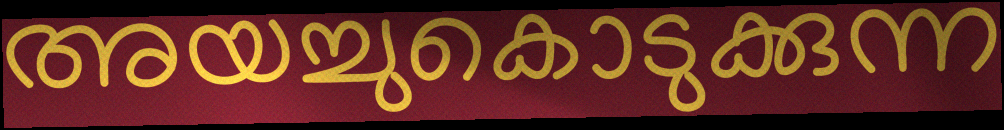
അയച്ചുകൊടുക്കുന്ന